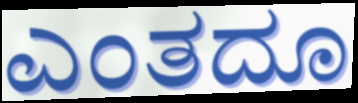
ಎಂತದೂ